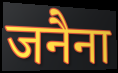
जनैना